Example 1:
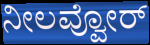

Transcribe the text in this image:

ನೀಲವ್ವೋರ್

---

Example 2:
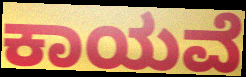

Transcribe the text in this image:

ಕಾಯವೆ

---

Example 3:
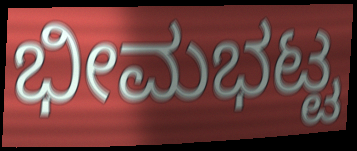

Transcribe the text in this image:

ಭೀಮಭಟ್ಟ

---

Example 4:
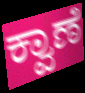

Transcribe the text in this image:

ಕ್ವಾಣೆ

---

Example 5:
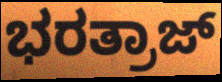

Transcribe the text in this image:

ಭರತ್ರಾಜ್